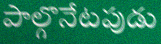
పాల్గొనేటపుడు